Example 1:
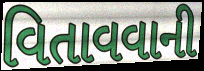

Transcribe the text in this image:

વિતાવવાની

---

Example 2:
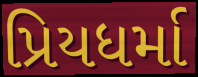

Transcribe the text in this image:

પ્રિયધર્મા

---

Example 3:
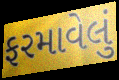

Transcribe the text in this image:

ફરમાવેલું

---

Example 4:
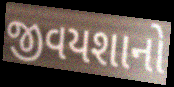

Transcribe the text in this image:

જીવયશાનો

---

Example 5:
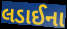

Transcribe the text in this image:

લડાઈના